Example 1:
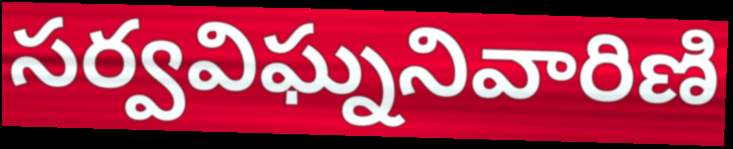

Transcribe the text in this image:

సర్వవిఘ్ననివారిణి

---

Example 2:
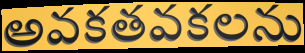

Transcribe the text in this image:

అవకతవకలను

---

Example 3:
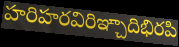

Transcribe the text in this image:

హరిహరవిరిఞ్చాదిభిరపి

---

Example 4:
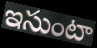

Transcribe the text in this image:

ఇసుంటా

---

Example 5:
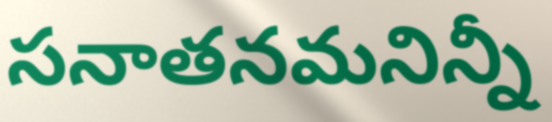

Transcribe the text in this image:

సనాతనమనిన్నీ